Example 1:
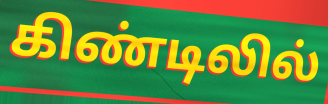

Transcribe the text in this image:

கிண்டிலில்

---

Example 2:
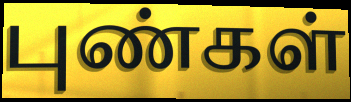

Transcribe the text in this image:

புண்கள்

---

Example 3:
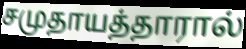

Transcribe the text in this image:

சமுதாயத்தாரால்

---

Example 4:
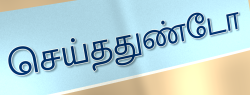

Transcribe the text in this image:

செய்ததுண்டோ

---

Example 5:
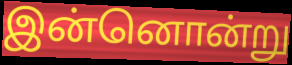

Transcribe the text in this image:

இன்னொன்று